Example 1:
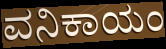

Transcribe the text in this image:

ವನಿಕಾಯಂ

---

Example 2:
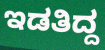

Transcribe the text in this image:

ಇಡತಿದ್ದ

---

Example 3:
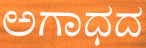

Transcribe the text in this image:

ಅಗಾಧದ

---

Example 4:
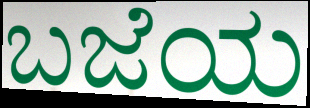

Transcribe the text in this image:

ಬಜೆಯ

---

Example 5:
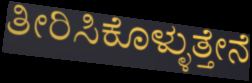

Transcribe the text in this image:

ತೀರಿಸಿಕೊಳ್ಳುತ್ತೇನೆ